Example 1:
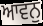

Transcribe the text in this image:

ਆਵਨੁ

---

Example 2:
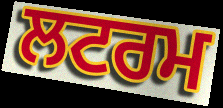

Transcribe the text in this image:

ਲਟਰਮ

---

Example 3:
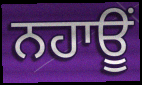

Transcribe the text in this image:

ਨਹਾਊਂ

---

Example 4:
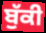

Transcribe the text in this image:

ਬੁੱਕੀ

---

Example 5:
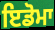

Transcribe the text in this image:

ਇਡੋਮਾ